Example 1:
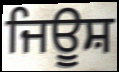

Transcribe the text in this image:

ਜਿਊਸ਼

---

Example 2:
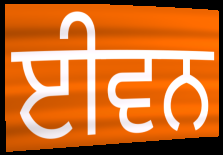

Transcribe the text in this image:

ਈਵਨ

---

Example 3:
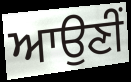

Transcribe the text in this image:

ਆਉਣੀੰ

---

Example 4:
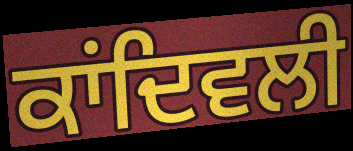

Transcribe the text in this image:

ਕਾਂਦਿਵਲੀ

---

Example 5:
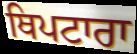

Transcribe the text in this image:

ਥਿਪਟਾਰਾ